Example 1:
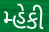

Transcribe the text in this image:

મ્હેકી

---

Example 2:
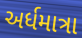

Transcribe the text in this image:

અર્ધમાત્રા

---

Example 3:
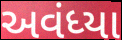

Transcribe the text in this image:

અવંધ્યા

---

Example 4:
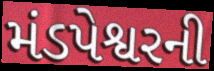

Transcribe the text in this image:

મંડપેશ્વરની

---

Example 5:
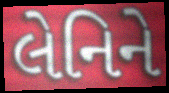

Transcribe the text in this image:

લેનિને